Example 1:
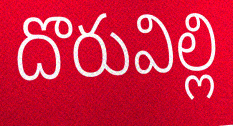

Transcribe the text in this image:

దొరువిల్లి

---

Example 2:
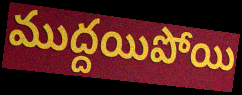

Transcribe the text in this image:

ముద్దయిపోయి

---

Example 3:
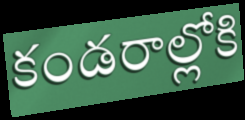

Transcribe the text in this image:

కండరాల్లోకి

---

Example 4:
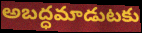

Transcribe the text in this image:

అబద్ధమాడుటకు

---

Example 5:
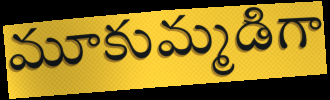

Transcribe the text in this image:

మూకుమ్మడిగా